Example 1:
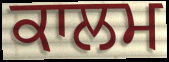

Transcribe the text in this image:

ਕਾਲਮ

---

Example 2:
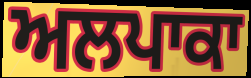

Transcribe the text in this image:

ਅਲਪਾਕਾ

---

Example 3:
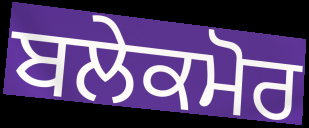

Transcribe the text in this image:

ਬਲੇਕਮੋਰ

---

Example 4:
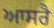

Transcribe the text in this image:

ਆਸਰੈ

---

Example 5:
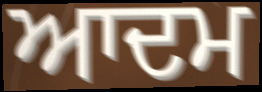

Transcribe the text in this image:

ਆਦਮ